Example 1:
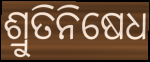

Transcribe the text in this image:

ଶ୍ରୁତିନିଷେଧ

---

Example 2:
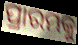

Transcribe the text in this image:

ପ୍ରାରମ୍ଭକୁ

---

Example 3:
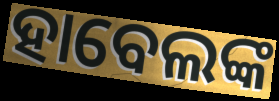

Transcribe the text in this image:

ହାବେଲଙ୍କ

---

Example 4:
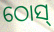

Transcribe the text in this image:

ଠୋସ୍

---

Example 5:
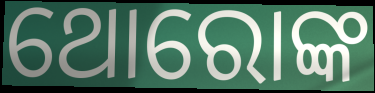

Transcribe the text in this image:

ଥୋରୋଙ୍କ